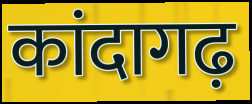
कांदागढ़